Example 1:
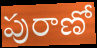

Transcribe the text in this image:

పురాణో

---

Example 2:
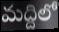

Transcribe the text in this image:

మద్దిలో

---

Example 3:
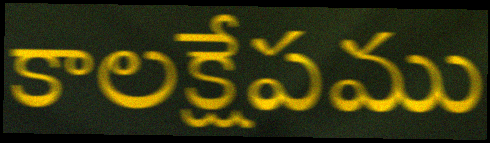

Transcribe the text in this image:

కాలక్షేపము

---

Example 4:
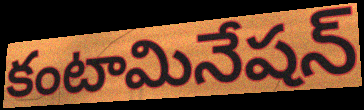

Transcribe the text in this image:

కంటామినేషన్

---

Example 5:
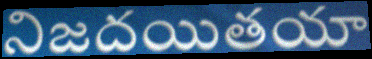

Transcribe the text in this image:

నిజదయితయా